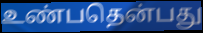
உண்பதென்பது